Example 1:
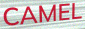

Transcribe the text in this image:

CAMEL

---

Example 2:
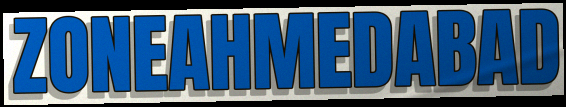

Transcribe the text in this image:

ZONEAHMEDABAD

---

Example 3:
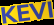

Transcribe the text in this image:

KEVI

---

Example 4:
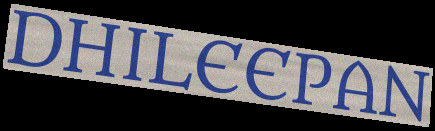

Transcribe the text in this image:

DHILEEPAN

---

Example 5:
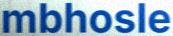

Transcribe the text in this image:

mbhosle